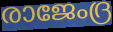
രാജേംദ്ര